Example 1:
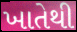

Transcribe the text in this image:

ખાતેથી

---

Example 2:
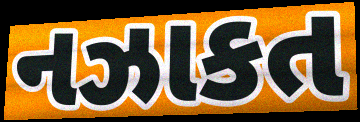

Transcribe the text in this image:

નઝાકત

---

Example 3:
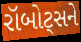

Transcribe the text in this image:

રૉબોટ્સને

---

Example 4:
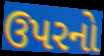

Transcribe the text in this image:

ઉપરનો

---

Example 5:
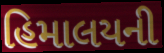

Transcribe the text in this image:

હિમાલયની